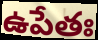
ఉపేతః